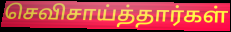
செவிசாய்த்தார்கள்